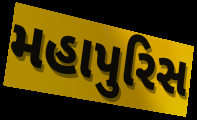
મહાપુરિસ